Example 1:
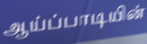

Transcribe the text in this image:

ஆய்ப்பாடியின்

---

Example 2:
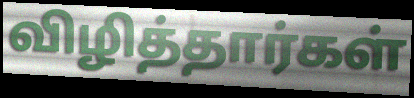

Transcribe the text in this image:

விழித்தார்கள்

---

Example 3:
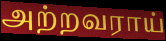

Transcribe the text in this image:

அற்றவராய்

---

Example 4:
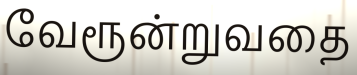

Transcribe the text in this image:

வேரூன்றுவதை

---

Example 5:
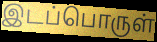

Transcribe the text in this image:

இடப்பொருள்